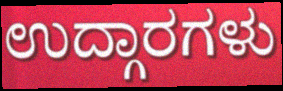
ಉದ್ಗಾರಗಳು